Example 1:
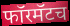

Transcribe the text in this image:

फॉरमॅटच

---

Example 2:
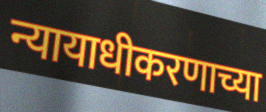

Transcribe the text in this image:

न्यायाधीकरणाच्या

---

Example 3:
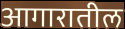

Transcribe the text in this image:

आगारातील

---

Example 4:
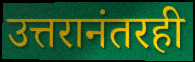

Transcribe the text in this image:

उत्तरानंतरही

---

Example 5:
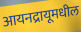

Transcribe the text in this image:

आयनद्रायूमधील